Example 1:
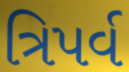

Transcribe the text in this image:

ત્રિપર્વ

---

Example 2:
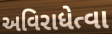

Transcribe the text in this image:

અવિરાધેત્વા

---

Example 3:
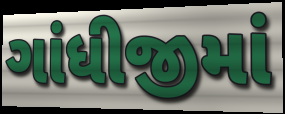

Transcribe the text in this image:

ગાંધીજીમાં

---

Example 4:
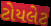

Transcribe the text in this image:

ટોયલેટ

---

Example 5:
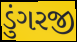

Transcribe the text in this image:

ડુંગરજી